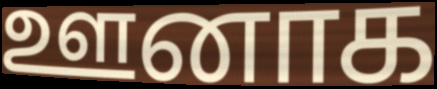
ஊனாக